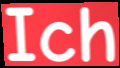
Ich